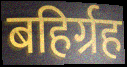
बहिर्ग्रह